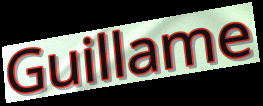
Guillame